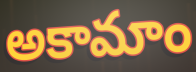
అకామాం